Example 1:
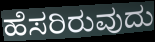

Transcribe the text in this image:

ಹೆಸರಿರುವುದು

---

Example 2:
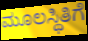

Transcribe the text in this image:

ಮೂಲಸ್ಥಿತಿಗೆ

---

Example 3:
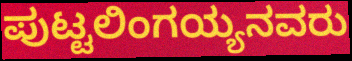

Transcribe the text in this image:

ಪುಟ್ಟಲಿಂಗಯ್ಯನವರು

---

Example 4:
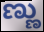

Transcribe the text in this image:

ಣ್ಣು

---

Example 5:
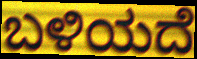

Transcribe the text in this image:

ಬಳಿಯದೆ